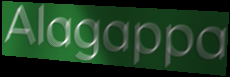
Alagappa